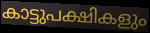
കാട്ടുപക്ഷികളും